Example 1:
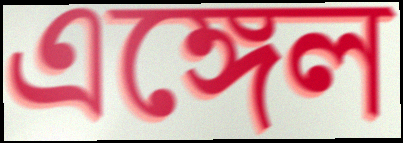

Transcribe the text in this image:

এঙ্গেল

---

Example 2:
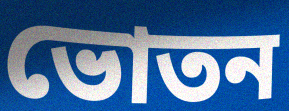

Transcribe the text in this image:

ভোতন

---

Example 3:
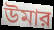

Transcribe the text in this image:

উমার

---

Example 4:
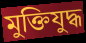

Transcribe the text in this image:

মুক্তিযুদ্ধ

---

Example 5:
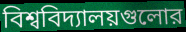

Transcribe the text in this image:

বিশ্ববিদ্যালয়গুলোর